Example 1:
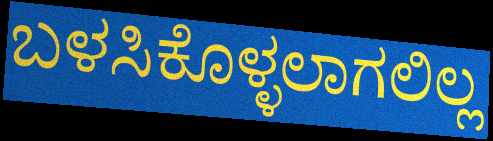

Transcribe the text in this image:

ಬಳಸಿಕೊಳ್ಳಲಾಗಲಿಲ್ಲ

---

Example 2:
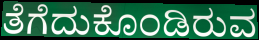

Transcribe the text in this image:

ತೆಗೆದುಕೊಂಡಿರುವ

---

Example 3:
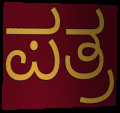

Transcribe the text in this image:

ಪತ್ರ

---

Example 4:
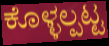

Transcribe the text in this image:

ಕೊಳ್ಳಲ್ಪಟ್ಟ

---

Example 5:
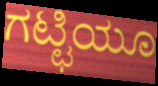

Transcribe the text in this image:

ಗಟ್ಟಿಯೂ